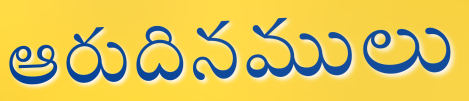
ఆరుదినములు